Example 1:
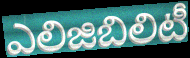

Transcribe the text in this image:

ఎలిజిబిలిటీ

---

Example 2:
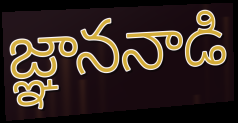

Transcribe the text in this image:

జ్ఞాననాడి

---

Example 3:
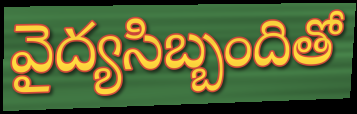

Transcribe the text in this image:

వైద్యసిబ్బందితో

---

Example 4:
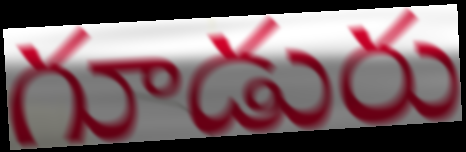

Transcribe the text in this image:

గూడురు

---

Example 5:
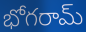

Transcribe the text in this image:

భోగరామ్